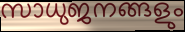
സാധുജനങ്ങളും